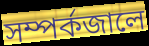
সম্পর্কজালে